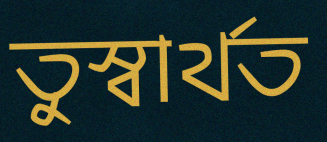
তুস্বাৰ্থত